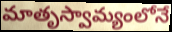
మాతృస్వామ్యంలోనే